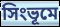
সিংভূমে